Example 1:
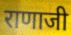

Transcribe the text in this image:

राणाजी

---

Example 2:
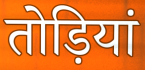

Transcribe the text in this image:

तोड़ियां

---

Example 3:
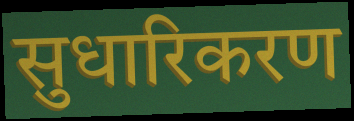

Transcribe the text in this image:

सुधारिकरण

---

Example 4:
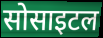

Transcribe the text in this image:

सोसाइटल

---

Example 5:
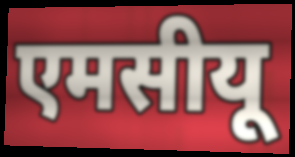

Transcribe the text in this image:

एमसीयू